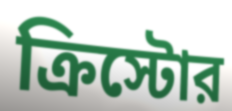
ক্রিস্টোর